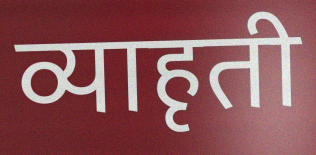
व्याहृती